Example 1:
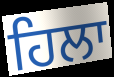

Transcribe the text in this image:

ਹਿਲਾ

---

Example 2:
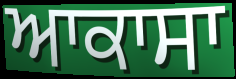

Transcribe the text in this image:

ਆਕਾਸਾ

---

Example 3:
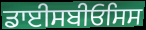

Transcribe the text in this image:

ਡਾਈਸਬੀਓਸਿਸ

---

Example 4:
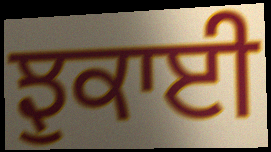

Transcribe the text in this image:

ਝੁਕਾਈ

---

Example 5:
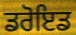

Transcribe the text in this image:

ਡਰੋਇਡ